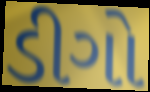
ડીગો